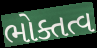
ભોક્તત્વ